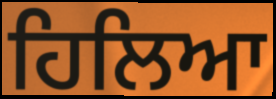
ਹਿਲਿਆ